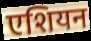
एशियन